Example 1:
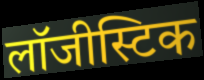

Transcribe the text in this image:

लॉजीस्टिक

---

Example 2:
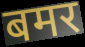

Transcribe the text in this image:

बमर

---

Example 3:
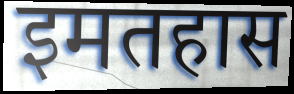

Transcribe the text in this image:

इमतहास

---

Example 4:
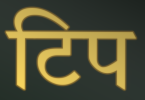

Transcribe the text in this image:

टिप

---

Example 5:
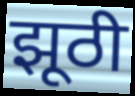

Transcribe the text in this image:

झूठी